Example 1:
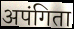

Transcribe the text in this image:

अपंगिता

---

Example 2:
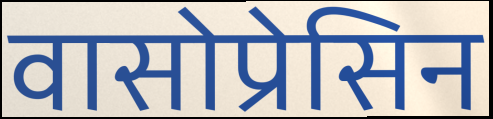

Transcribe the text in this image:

वासोप्रेसिन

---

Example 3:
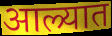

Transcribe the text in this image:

आल्यात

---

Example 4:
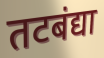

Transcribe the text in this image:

तटबंद्या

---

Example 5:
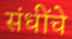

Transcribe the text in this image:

संधींचे